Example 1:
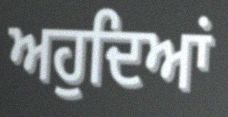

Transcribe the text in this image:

ਅਹੁਦਿਆਂ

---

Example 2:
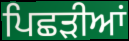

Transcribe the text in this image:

ਪਿਛੜੀਆਂ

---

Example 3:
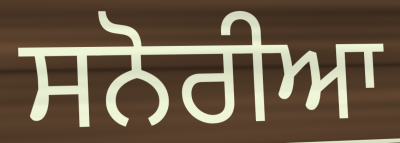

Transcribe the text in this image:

ਸਨੋਰੀਆ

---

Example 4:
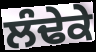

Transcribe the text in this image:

ਲੰਢੇਕੇ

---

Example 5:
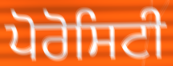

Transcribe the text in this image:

ਪੋਰੋਸਿਟੀ